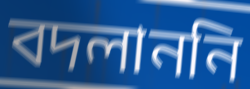
বদলাননি